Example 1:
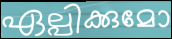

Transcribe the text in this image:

ഏല്പിക്കുമോ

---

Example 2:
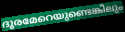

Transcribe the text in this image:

ദൂരമേറെയുണ്ടെങ്കിലും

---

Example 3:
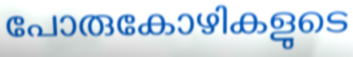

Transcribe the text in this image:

പോരുകോഴികളുടെ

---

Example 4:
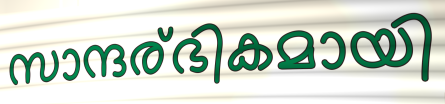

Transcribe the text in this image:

സാന്ദര്ഭികമായി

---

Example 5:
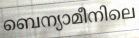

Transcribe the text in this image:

ബെന്യാമീനിലെ